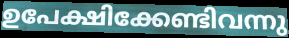
ഉപേക്ഷിക്കേണ്ടിവന്നു